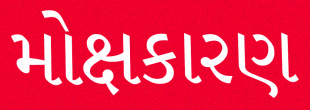
મોક્ષકારણ